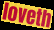
loveth